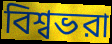
বিশ্বভরা